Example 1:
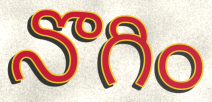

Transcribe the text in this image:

నొగిం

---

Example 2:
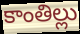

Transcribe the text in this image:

కాంతిల్లు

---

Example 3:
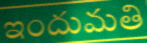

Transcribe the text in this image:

ఇందుమతి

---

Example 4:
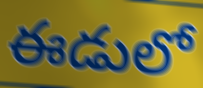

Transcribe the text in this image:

ఈడులో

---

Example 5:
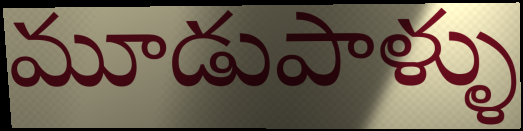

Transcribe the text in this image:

మూడుపాళ్ళు